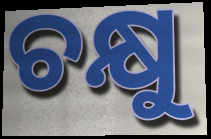
ଚକ୍ଷୁ